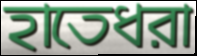
হাতেধরা